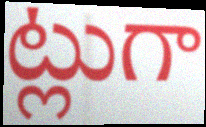
ట్లుగా